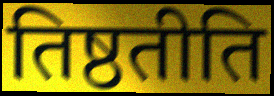
तिष्ठतीति